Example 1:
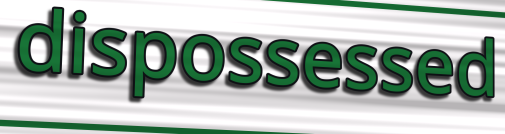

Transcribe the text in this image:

dispossessed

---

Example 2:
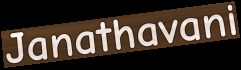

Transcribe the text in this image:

Janathavani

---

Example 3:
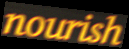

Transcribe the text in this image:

nourish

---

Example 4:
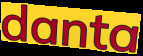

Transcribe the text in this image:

danta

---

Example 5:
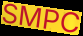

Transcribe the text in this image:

SMPC